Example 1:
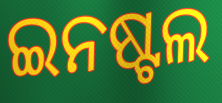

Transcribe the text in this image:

ଇନଷ୍ଟଲ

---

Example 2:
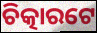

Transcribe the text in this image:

ଚିତ୍କାରଟେ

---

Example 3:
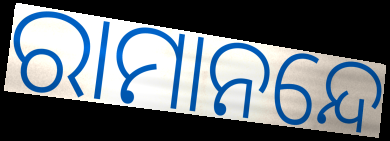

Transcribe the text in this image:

ରାମାନନ୍ଦେ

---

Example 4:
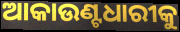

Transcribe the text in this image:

ଆକାଉଣ୍ଟଧାରୀକୁ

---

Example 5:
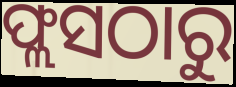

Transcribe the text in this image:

ଫ୍ଲସଠାରୁ